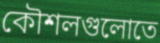
কৌশলগুলোতে